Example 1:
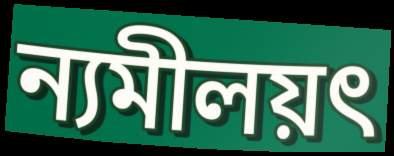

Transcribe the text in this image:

ন্যমীলয়ৎ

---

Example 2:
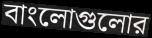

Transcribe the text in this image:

বাংলোগুলোর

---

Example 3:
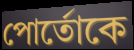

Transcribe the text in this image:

পোর্তোকে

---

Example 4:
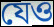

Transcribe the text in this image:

যেও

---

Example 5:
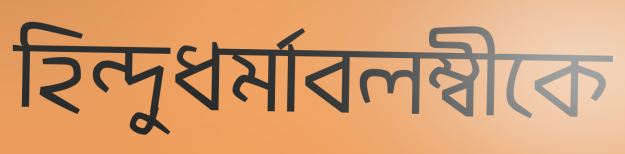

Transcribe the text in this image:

হিন্দুধর্মাবলম্বীকে